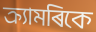
ক্ৰ্যামৰিকে